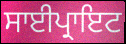
ਸਾਈਪ੍ਰਾਇਟ